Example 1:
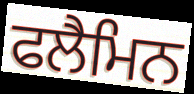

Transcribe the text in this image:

ਫਲੈਮਿਨ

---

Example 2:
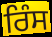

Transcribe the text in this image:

ਰਿੰਸ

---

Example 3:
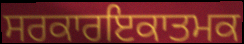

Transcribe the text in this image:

ਸਰਕਾਰਇਕਾਤਮਕ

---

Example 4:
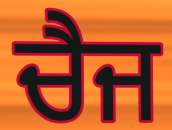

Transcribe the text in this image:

ਚੈਜ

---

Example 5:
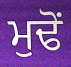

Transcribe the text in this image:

ਮੁਢੋਂ